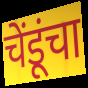
चेंडूंचा